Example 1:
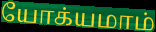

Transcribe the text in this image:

யோக்யமாம்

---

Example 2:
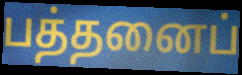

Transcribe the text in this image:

பத்தனைப்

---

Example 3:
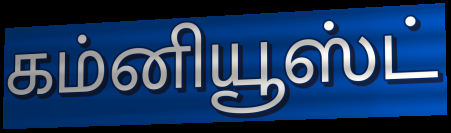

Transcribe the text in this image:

கம்னியூஸ்ட்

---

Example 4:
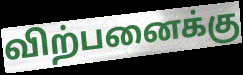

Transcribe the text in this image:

விற்பனைக்கு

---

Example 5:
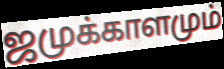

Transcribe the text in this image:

ஜமுக்காளமும்